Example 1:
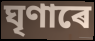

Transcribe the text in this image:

ঘৃণাৰে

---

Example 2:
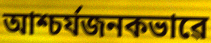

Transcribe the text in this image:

আশ্চৰ্যজনকভাৱে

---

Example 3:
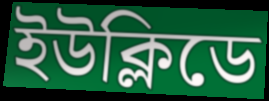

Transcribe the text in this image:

ইউক্লিডে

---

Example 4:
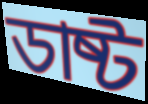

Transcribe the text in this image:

ডাষ্ট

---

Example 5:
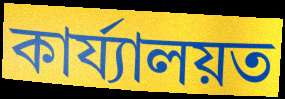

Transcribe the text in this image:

কাৰ্য্যালয়ত